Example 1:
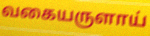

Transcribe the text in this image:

வகையருளாய்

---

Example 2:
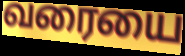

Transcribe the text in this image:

வரையை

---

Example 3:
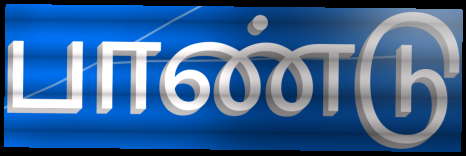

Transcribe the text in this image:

பாண்டு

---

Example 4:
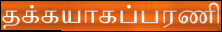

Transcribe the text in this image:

தக்கயாகப்பரணி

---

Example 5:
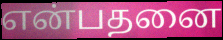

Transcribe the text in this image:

என்பதனை